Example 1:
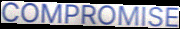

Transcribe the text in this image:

COMPROMISE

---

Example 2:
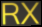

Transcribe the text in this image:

RX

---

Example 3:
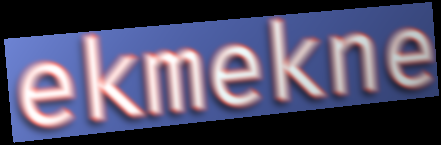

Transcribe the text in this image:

ekmekne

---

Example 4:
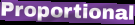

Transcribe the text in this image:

Proportional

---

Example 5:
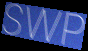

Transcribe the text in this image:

SWP